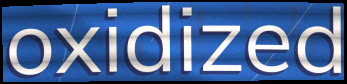
oxidized